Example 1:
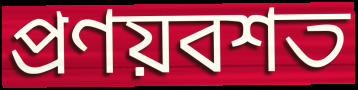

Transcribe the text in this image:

প্রণয়বশত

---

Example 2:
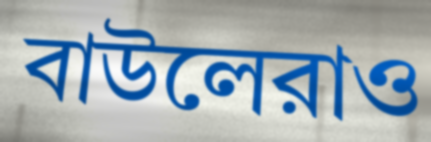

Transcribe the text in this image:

বাউলেরাও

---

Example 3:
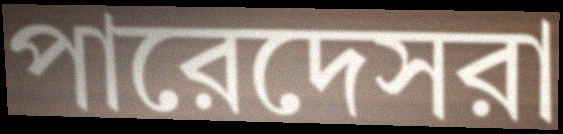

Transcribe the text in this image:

পারেদেসরা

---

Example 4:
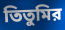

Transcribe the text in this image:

তিতুমির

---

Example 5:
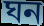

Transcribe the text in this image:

ঘন